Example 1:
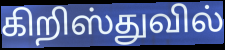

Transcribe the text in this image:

கிறிஸ்துவில்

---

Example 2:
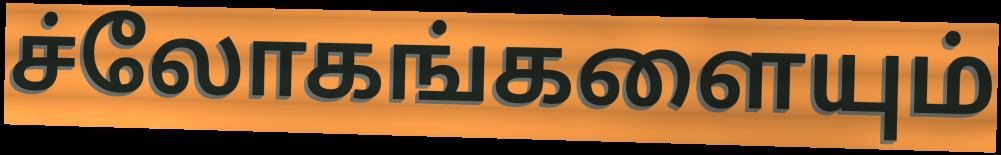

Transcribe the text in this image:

ச்லோகங்களையும்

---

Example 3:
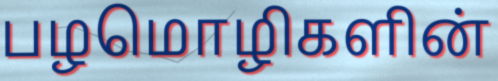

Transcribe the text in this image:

பழமொழிகளின்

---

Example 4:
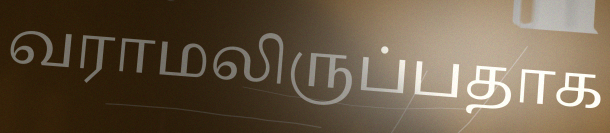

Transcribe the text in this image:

வராமலிருப்பதாக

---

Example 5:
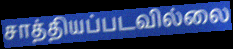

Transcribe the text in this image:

சாத்தியப்படவில்லை